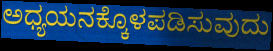
ಅಧ್ಯಯನಕ್ಕೊಳಪಡಿಸುವುದು